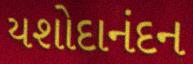
યશોદાનંદન